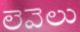
లెవెలు